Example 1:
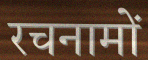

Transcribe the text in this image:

रचनामों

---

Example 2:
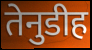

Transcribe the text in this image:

तेनुडीह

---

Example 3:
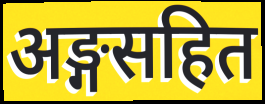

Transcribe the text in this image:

अङ्गसहित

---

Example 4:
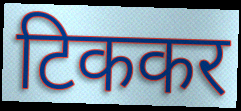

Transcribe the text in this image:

टिककर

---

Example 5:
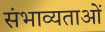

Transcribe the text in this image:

संभाव्यताओं